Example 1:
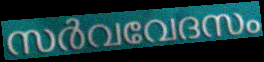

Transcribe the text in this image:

സർവവേദസം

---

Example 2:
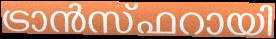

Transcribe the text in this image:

ട്രാൻസ്ഫറായി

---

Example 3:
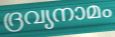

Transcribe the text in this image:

ദ്രവ്യനാമം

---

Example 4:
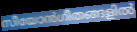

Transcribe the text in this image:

സീയോൻഗീതങ്ങളിൽ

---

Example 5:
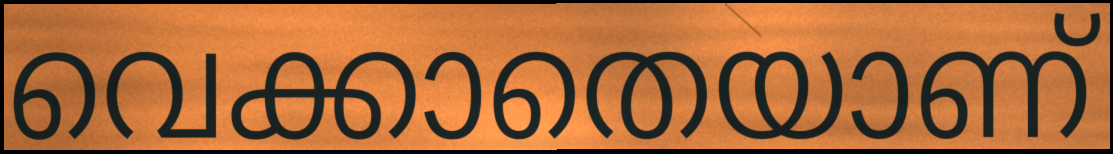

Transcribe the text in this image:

വെക്കാതെയാണ്